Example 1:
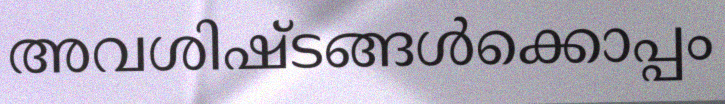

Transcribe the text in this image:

അവശിഷ്ടങ്ങൾക്കൊപ്പം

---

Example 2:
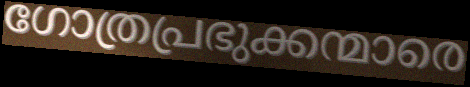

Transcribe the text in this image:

ഗോത്രപ്രഭുക്കന്മാരെ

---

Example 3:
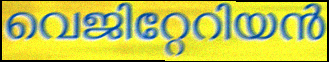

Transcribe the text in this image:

വെജിറ്റേറിയൻ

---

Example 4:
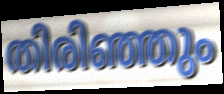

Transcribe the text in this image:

തിരിഞ്ഞും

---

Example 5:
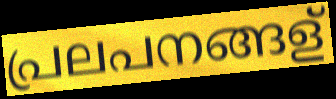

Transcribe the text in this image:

പ്രലപനങ്ങള്